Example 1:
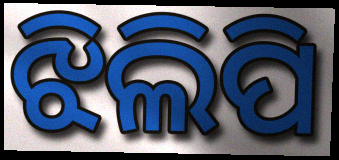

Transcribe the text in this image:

ଝିଲିପି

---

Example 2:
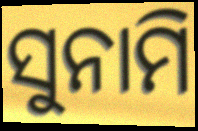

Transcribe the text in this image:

ସୁନାମି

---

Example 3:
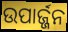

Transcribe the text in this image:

ଉପାର୍ଜ୍ଜନ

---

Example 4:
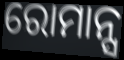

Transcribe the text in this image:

ରୋମାନ୍ସ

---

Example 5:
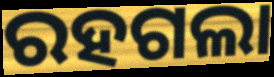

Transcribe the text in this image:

ରହଗଲା